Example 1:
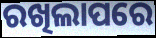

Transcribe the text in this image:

ରଖିଲାପରେ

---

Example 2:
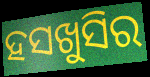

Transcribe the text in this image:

ହସଖୁସିର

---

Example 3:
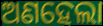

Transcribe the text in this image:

ଅଣହେଲା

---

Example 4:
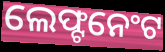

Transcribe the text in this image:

ଲେଫ୍ଟନେଂଟ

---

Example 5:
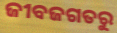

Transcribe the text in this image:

ଜୀବଜଗତରୁ